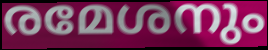
രമേശനും